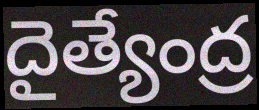
దైత్యేంద్ర